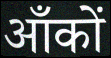
आँकों